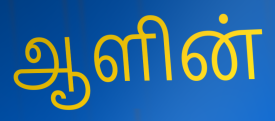
ஆளின்